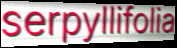
serpyllifolia